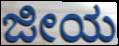
ಜೀಯ